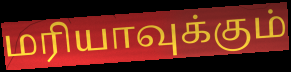
மரியாவுக்கும்